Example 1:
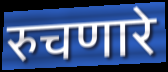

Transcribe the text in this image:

रुचणारे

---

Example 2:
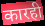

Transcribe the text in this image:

कारही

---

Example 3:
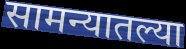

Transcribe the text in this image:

सामन्यातल्या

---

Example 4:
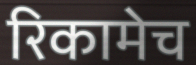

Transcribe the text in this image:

रिकामेच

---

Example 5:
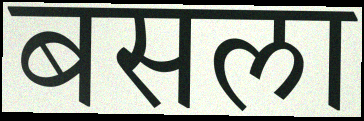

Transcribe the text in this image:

बसला